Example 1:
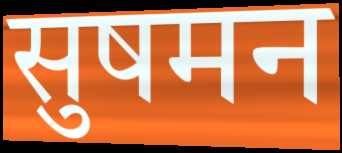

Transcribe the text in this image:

सुषमन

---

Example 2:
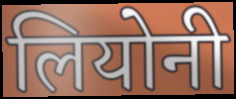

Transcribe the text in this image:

लियोनी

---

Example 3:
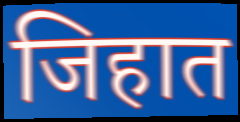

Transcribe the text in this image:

जिहात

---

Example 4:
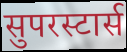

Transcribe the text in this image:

सुपरस्टार्स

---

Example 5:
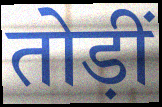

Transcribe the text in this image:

तोड़ीं